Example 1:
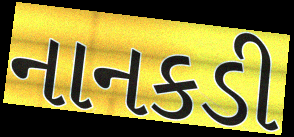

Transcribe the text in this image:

નાનકડી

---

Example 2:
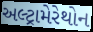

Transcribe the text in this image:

અલ્ટ્રામેરેથોન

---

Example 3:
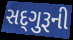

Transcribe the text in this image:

સદ્‌ગુરૂની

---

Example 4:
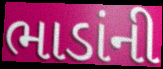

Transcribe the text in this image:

ભાડાંની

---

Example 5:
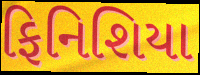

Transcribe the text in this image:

ફિનિશિયા